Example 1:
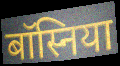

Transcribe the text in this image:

बॉस्निया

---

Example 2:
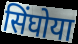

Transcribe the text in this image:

सिंघोया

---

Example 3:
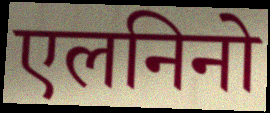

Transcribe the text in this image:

एलनिनो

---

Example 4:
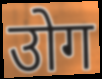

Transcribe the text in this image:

उोग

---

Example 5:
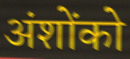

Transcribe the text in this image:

अंशोंको